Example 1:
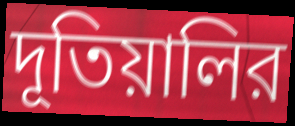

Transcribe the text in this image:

দূতিয়ালির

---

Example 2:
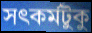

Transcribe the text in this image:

সৎকর্মটুকু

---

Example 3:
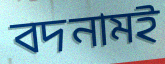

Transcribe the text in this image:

বদনামই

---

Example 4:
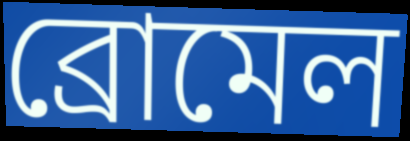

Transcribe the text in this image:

ব্রোমেল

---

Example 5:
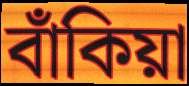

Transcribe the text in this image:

বাঁকিয়া